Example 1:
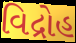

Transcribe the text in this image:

વિદ્રોહ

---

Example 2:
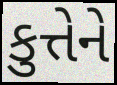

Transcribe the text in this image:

કુત્તેને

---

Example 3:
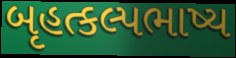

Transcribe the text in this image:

બૃહત્કલ્પભાષ્ય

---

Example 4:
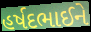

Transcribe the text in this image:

હર્ષદભાઈને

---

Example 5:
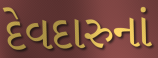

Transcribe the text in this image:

દેવદારુનાં